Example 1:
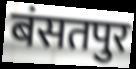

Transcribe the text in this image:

बंसतपुर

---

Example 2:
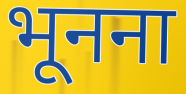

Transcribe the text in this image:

भूनना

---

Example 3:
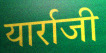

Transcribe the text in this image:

यार्राजी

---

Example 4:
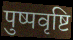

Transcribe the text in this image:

पुष्पवृष्टि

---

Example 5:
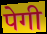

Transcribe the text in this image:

पेगी